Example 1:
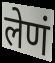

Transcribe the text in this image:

लेणं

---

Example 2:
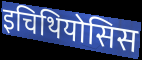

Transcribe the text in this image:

इचिथियोसिस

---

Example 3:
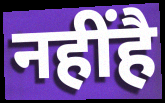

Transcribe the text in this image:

नहींहै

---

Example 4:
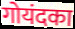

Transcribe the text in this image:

गोयंदका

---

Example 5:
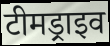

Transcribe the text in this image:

टीमड्राइव